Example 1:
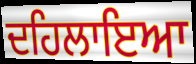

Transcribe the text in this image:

ਦਹਿਲਾਇਆ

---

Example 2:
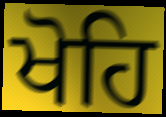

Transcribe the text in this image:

ਖੋਹਿ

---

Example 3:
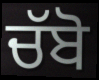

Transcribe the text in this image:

ਚੱਬੋ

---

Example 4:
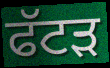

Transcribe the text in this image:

ਫੱਟੜ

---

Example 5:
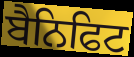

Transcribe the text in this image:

ਬੈਨਿਫਿਟ